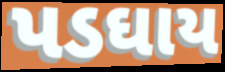
પડઘાય